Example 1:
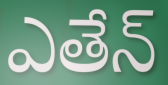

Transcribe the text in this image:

ఎతేన్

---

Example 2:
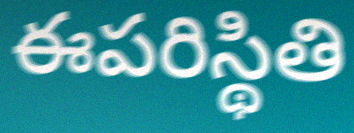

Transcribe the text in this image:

ఈపరిస్థితి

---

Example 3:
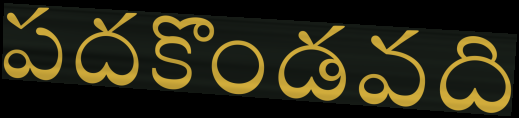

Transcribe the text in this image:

పదకొండవది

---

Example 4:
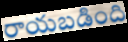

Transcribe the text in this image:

రాయబడింది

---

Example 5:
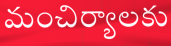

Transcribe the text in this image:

మంచిర్యాలకు